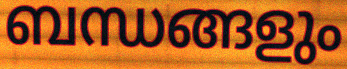
ബന്ധങ്ങളും